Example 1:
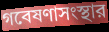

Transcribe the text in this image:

গবেষণাসংস্থার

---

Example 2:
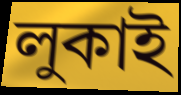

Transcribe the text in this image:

লুকাই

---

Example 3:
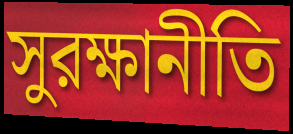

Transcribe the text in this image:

সুরক্ষানীতি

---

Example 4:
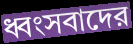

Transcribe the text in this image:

ধ্বংসবাদের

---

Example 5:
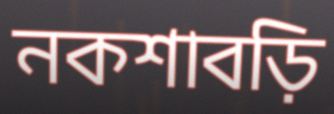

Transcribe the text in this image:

নকশাবড়ি